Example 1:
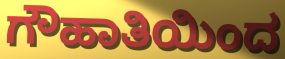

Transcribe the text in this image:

ಗೌಹಾತಿಯಿಂದ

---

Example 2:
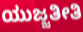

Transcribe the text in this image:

ಯುಜ್ಜತೀತಿ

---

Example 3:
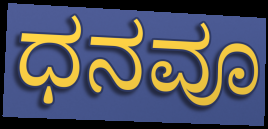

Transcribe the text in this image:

ಧನವೂ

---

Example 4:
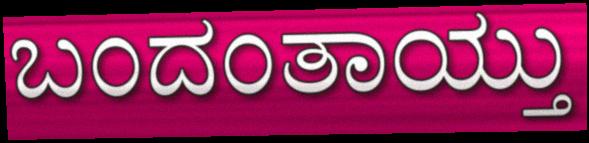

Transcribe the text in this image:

ಬಂದಂತಾಯ್ತು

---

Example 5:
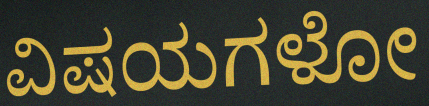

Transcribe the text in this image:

ವಿಷಯಗಳೋ